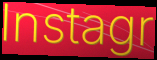
Instagr